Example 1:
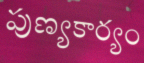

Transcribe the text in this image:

పుణ్యకార్యం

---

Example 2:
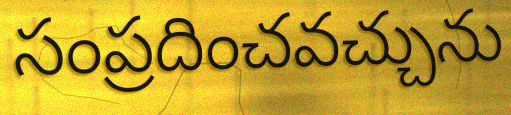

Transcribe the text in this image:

సంప్రదించవచ్చును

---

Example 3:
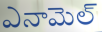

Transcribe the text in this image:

ఎనామెల్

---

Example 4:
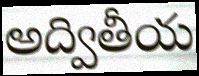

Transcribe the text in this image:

అద్వితీయ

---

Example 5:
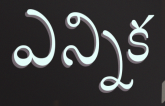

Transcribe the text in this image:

ఎన్నిక